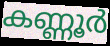
കണ്ണൂർ